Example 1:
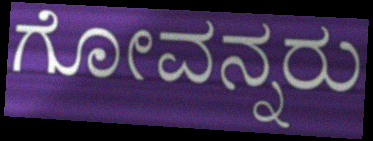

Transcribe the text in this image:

ಗೋವನ್ನರು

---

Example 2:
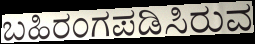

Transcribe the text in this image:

ಬಹಿರಂಗಪಡಿಸಿರುವ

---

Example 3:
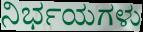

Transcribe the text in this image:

ನಿರ್ಭಯಗಳು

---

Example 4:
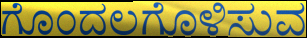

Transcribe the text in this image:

ಗೊಂದಲಗೊಳಿಸುವ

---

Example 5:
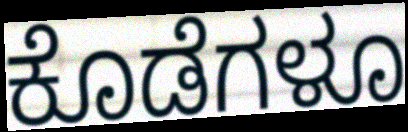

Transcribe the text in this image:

ಕೊಡೆಗಳೂ